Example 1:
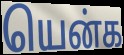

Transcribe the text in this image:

யென்க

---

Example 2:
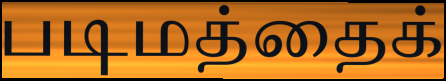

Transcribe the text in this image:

படிமத்தைக்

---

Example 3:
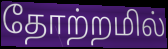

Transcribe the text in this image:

தோற்றமில்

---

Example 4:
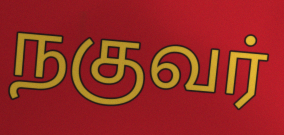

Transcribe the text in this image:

நகுவர்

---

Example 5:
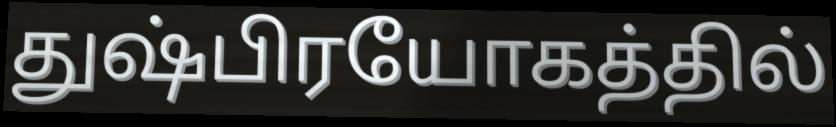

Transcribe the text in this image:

துஷ்பிரயோகத்தில்